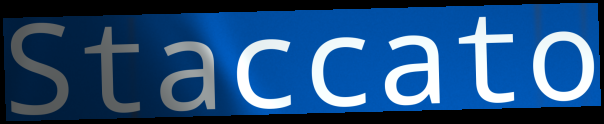
Staccato